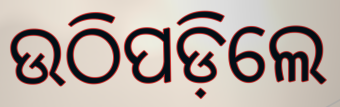
ଉଠିପଡ଼ିଲେ